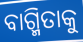
ବାଗ୍ମିତାକୁ